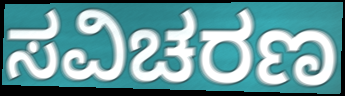
ಸವಿಚರಣ